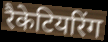
रैकेटियरिंग